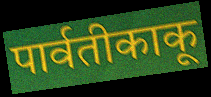
पार्वतीकाकू